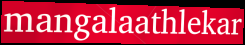
mangalaathlekar